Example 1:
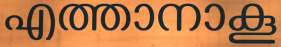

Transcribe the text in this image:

എത്താനാകൂ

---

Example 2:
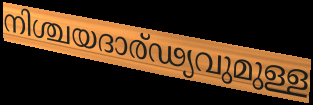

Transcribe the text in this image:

നിശ്ചയദാര്ഢ്യവുമുള്ള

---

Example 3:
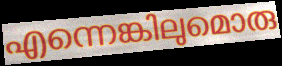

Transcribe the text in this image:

എന്നെങ്കിലുമൊരു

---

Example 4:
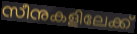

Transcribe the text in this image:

സീനുകളിലേക്ക്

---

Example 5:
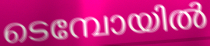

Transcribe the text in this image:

ടെമ്പോയിൽ